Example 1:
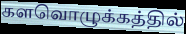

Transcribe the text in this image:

களவொழுக்கத்தில்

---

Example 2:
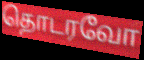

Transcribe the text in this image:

தொடரவோ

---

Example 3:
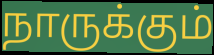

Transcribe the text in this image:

நாருக்கும்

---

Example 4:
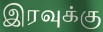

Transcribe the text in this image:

இரவுக்கு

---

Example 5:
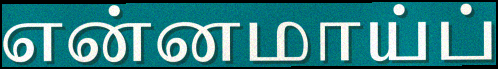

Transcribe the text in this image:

என்னமாய்ப்